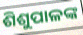
ଶିଶୁପାଳଙ୍କ